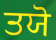
ਤਯੋ